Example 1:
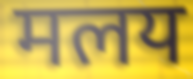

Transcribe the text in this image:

मलय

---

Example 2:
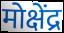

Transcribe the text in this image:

मोक्षेंद्र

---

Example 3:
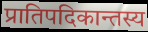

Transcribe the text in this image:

प्रातिपदिकान्तस्य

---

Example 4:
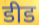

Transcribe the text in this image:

डीड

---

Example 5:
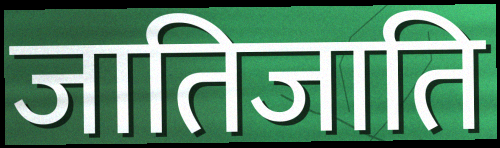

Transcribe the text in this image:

जातिजाति